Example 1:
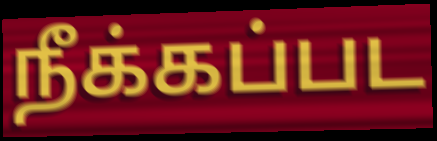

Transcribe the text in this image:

நீக்கப்பட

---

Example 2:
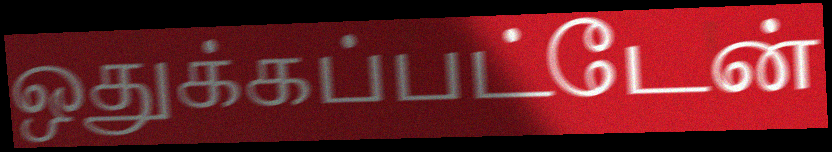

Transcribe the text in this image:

ஒதுக்கப்பட்டேன்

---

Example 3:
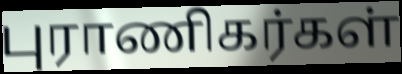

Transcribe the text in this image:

புராணிகர்கள்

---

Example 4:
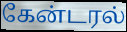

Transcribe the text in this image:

கேன்டரல்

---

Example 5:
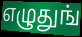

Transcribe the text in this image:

எழுதுங்